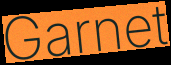
Garnet